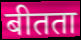
बीतता